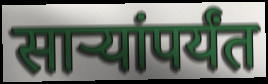
साऱ्यांपर्यंत